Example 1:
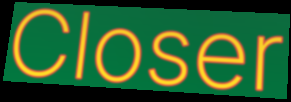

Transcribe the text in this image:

Closer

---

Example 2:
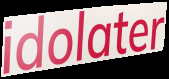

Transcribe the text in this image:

idolater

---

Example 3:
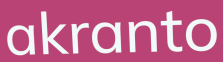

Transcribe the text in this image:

akranto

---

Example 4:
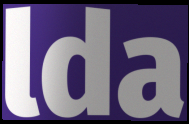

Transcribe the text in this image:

lda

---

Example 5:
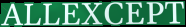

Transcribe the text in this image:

ALLEXCEPT